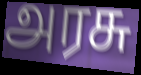
அரசு